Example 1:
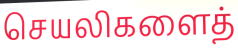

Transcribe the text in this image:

செயலிகளைத்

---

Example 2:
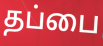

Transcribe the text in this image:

தப்பை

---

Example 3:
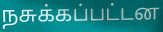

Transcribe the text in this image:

நசுக்கப்பட்டன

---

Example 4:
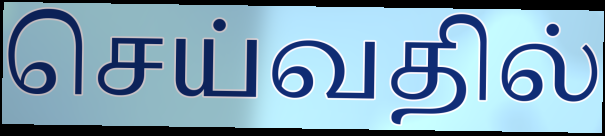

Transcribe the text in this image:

செய்வதில்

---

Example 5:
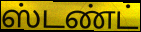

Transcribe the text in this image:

ஸ்டண்ட்